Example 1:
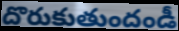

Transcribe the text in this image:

దొరుకుతుందండీ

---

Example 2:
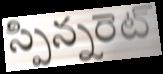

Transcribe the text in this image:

స్పిన్నరెట్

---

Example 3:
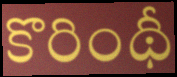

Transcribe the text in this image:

కొరింథీ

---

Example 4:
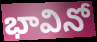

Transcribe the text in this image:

భావినో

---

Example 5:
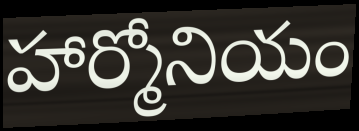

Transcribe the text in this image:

హార్మోనియం